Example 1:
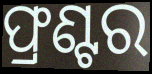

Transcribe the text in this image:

ଫ୍ରଣ୍ଟର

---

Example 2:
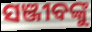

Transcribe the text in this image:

ସଞ୍ଜୀବଙ୍କୁ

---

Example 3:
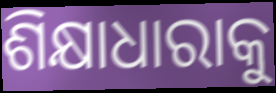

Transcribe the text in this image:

ଶିକ୍ଷାଧାରାକୁ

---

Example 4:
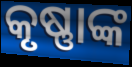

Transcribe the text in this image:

କୃଷ୍ଣାଙ୍କ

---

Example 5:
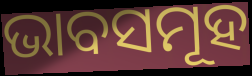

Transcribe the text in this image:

ଭାବସମୂହ